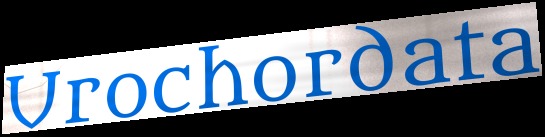
Urochordata